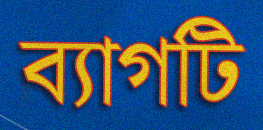
ব্যাগটি